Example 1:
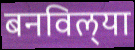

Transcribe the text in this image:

बनविल्या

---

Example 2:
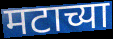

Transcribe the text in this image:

मटाच्या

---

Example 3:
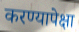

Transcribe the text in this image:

करण्यापेक्षा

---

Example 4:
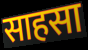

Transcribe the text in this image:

साहसा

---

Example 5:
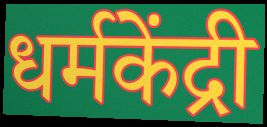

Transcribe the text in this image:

धर्मकेंद्री